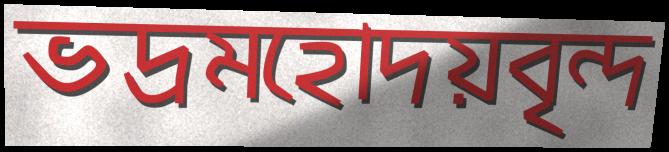
ভদ্রমহোদয়বৃন্দ